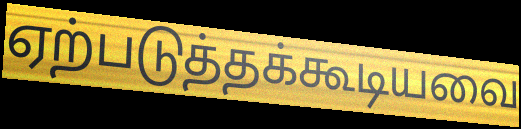
ஏற்படுத்தக்கூடியவை